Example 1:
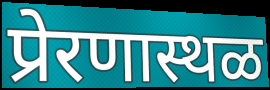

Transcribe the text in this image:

प्रेरणास्थळ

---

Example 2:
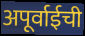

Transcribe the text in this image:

अपूर्वाईची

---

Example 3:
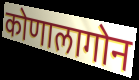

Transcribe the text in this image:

कोणालागोन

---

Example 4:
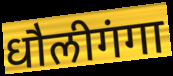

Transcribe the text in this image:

धौलीगंगा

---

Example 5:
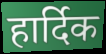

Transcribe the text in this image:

हार्दिक